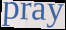
pray